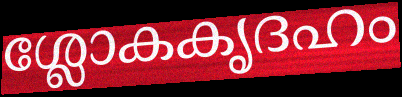
ശ്ലോകകൃദഹം